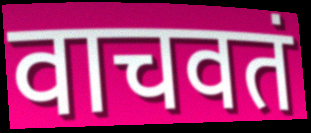
वाचवतं